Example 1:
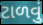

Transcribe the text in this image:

ટાળવું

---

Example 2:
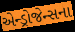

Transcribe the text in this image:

એન્ડ્રોજેન્સના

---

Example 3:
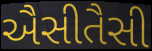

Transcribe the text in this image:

ઐસીતૈસી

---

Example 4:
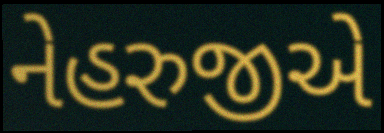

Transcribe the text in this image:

નેહરુજીએ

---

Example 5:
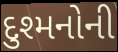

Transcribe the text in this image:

દુશ્મનોની